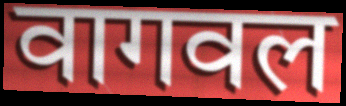
वागवल